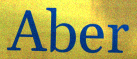
Aber